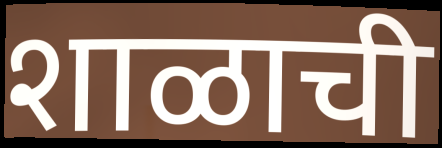
शाळाची